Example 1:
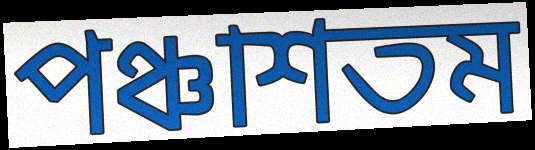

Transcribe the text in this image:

পঞ্চাশতম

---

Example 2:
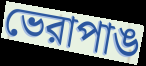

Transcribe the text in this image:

ভেরাপাঙ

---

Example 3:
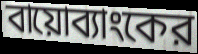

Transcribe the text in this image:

বায়োব্যাংকের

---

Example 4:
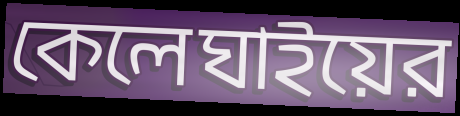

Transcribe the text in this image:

কেলেঘাইয়ের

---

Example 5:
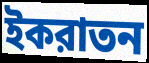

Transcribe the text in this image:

ইকরাতন